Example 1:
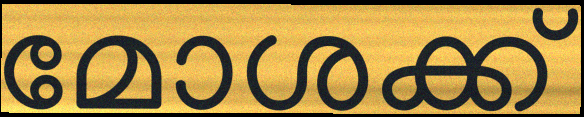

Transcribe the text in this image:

മോശക്ക്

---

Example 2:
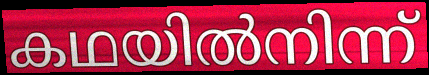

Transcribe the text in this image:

കഥയിൽനിന്ന്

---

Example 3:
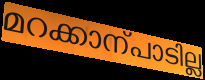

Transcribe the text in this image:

മറക്കാന്പാടില്ല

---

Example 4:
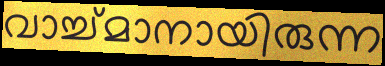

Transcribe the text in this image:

വാച്ച്മാനായിരുന്ന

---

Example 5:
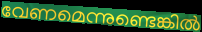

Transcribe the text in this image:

വേണമെന്നുണ്ടെങ്കിൽ